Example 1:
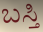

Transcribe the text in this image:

ಬಸ್ತಿ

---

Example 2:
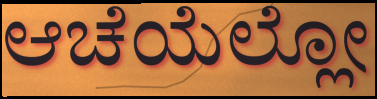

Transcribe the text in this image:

ಆಚೆಯೆಲ್ಲೋ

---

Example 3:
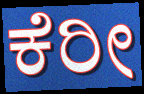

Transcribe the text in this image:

ಕೆರೀ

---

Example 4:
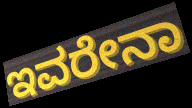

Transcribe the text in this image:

ಇವರೇನಾ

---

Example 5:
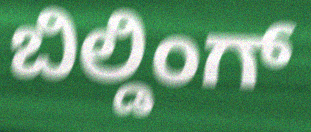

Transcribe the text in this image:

ಬಿಲ್ಡಿಂಗ್